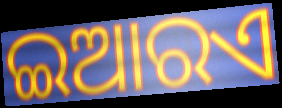
ଇଆରଏ